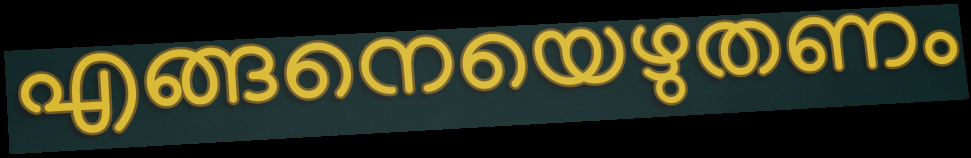
എങ്ങനെയെഴുതണം